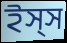
ইস্‌স